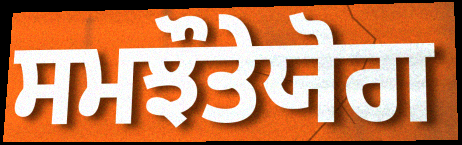
ਸਮਝੌਤੇਯੋਗ